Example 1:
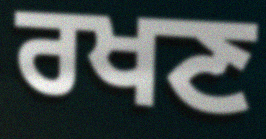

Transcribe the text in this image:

ਰਖਣ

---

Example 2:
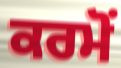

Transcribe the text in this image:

ਕਰਮੋਂ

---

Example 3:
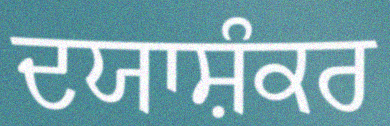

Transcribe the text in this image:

ਦਯਾਸ਼ੰਕਰ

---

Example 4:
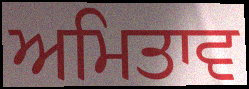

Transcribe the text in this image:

ਅਮਿਤਾਵ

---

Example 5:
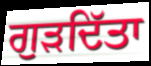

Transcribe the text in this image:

ਗੁੜਦਿੱਤਾ